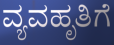
ವ್ಯವಹೃತಿಗೆ